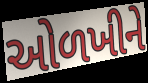
ઓળખીને